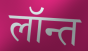
लॉन्त